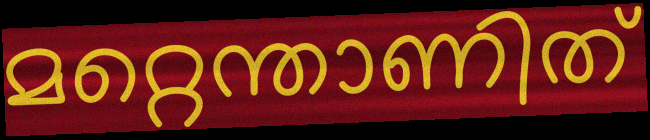
മറ്റെന്താണിത്